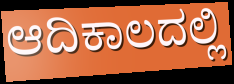
ಆದಿಕಾಲದಲ್ಲಿ